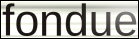
fondue